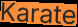
Karate